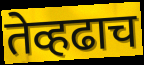
तेव्हढाच